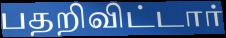
பதறிவிட்டார்